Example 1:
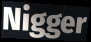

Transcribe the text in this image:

Nigger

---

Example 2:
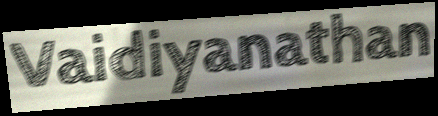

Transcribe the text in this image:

Vaidiyanathan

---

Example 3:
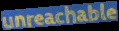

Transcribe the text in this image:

unreachable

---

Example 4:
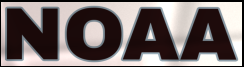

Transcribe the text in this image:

NOAA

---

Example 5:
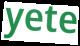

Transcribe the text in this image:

yete